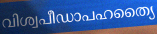
വിശ്വപീഡാപഹത്യൈ